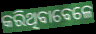
କରିଥିବାବେଳେ